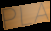
PLA